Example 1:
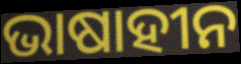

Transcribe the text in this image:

ଭାଷାହୀନ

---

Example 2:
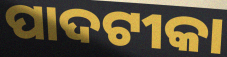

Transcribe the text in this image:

ପାଦଟୀକା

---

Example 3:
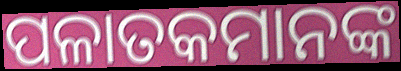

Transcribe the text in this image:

ପଳାତକମାନଙ୍କ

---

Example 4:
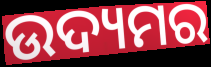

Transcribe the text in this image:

ଉଦ୍ୟମର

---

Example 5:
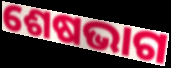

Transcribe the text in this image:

ଶେଷଭାଗ